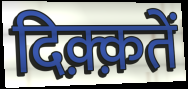
दिक़्क़तें